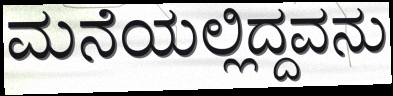
ಮನೆಯಲ್ಲಿದ್ದವನು